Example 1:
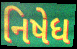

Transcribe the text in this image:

નિષેધ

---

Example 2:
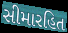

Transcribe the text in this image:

સીમારહિત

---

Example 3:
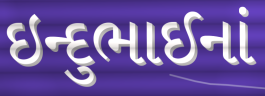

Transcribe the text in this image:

ઇન્દુભાઈનાં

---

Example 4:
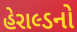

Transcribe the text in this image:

હેરાલ્ડનો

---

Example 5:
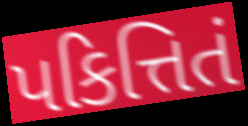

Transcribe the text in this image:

પકિત્તિતં